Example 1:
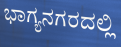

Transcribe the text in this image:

ಭಾಗ್ಯನಗರದಲ್ಲಿ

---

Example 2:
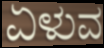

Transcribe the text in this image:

ಏಳುವ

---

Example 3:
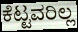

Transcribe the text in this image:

ಕೆಟ್ಟವರಿಲ್ಲ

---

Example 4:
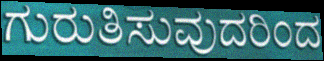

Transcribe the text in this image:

ಗುರುತಿಸುವುದರಿಂದ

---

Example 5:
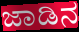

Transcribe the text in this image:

ಜಾಡಿನ